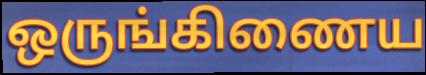
ஒருங்கிணைய